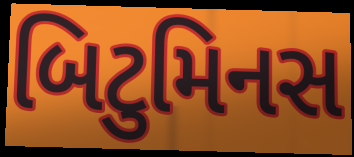
બિટુમિનસ